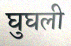
घुघली